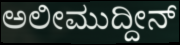
ಅಲೀಮುದ್ದೀನ್